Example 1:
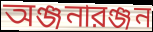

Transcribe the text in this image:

অঞ্জনারঞ্জন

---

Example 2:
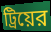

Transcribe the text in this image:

ট্রিয়ের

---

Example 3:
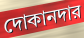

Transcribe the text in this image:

দোকানদার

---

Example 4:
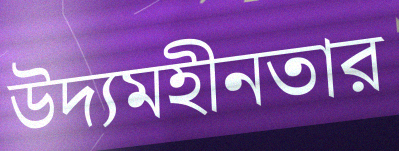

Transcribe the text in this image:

উদ্যমহীনতার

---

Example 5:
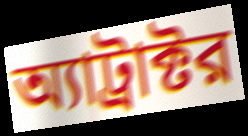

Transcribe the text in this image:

অ্যাট্রাক্টর